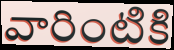
వారింటికి